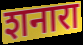
शनारा